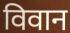
विवान